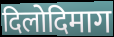
दिलोदिमाग